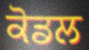
ਕੋਡਲ